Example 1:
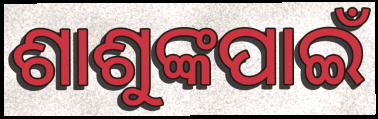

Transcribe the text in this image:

ଶାଶୁଙ୍କପାଇଁ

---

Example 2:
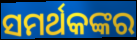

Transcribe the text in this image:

ସମର୍ଥକଙ୍କର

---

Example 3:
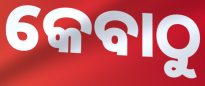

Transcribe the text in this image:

କେବାଠୁ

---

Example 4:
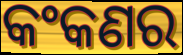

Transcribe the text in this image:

କଂକଣର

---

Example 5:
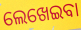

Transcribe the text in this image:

ଲେଖେଇବା